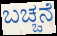
ಬಚ್ಚನೆ